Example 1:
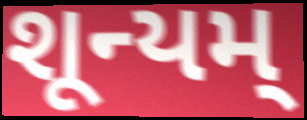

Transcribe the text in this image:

શૂન્યમ્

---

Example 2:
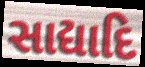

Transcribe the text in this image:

સાદ્યાદિ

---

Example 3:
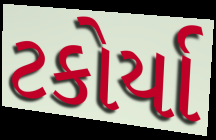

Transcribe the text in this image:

ટકોર્યા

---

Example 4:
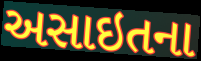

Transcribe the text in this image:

અસાઇતના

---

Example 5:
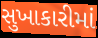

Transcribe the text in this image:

સુખાકારીમાં